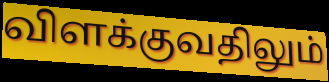
விளக்குவதிலும்